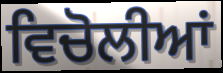
ਵਿਚੋਲੀਆਂ